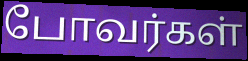
போவர்கள்